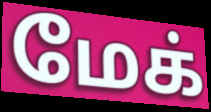
மேக்